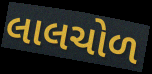
લાલચોળ